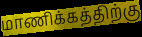
மாணிக்கத்திற்கு